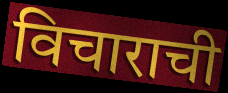
विचाराची